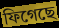
ফিগেছে